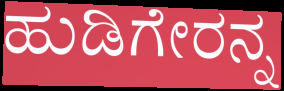
ಹುಡಿಗೇರನ್ನ